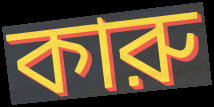
কাৰু